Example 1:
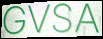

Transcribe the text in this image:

GVSA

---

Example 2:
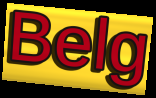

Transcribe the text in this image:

Belg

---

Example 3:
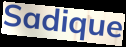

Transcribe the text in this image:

Sadique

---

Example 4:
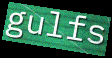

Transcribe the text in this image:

gulfs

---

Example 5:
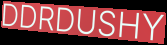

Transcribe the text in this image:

DDRDUSHY